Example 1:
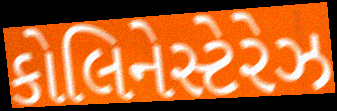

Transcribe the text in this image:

કોલિનેસ્ટેરેઝ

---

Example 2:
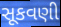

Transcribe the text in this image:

સૂકવણી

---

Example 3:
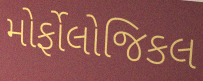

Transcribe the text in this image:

મોર્ફોલોજિકલ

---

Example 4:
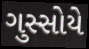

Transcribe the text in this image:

ગુસ્સોયે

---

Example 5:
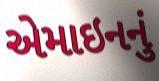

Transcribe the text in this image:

એમાઇનનું